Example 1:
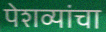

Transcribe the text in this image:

पेशव्यांचा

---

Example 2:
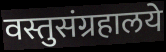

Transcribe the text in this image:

वस्तुसंग्रहालये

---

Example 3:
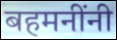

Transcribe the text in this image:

बहमनींनी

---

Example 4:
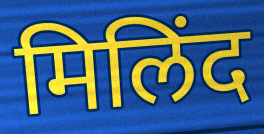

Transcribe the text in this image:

मिलिंद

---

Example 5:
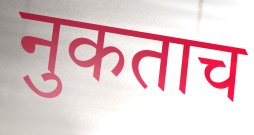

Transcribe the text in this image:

नुकताच